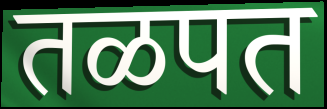
तळपत